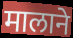
मालाने